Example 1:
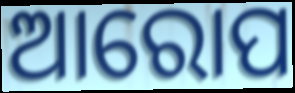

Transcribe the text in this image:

ଆରୋପ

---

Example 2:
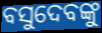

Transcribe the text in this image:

ବସୁଦେବଙ୍କୁ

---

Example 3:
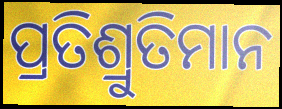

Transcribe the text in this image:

ପ୍ରତିଶ୍ରୁତିମାନ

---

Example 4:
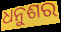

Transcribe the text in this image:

ଧନୁଶର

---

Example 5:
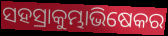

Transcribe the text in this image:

ସହସ୍ରାକୁମ୍ଭାଭିଷେକର